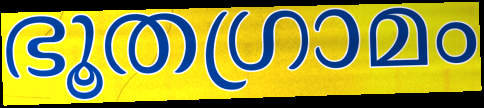
ഭൂതഗ്രാമം